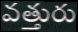
వత్తురు